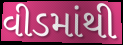
વીડમાંથી